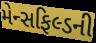
મેન્સફિલ્ડની